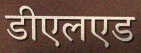
डीएलएड